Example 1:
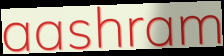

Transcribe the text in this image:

aashram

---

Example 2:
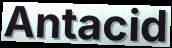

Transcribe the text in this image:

Antacid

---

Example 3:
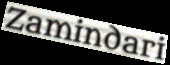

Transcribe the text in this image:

Zamindari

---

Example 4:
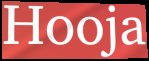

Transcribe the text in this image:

Hooja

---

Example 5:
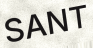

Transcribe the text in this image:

SANT